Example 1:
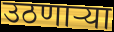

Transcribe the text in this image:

उठणाऱ्या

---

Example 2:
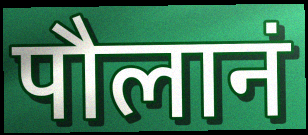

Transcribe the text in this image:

पौलानं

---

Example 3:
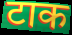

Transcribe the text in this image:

टाक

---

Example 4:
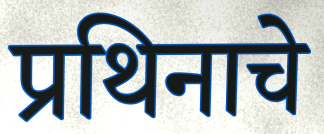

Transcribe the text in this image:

प्रथिनाचे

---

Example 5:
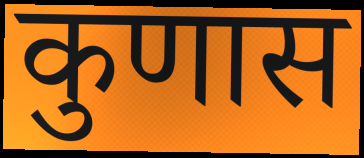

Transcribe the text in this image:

कुणास